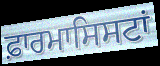
ਫ਼ਾਰਮਾਸਿਸਟਾਂ